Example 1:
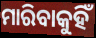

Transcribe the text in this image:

ମାରିବାକୁହିଁ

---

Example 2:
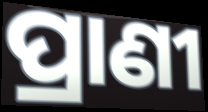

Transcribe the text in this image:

ପ୍ରାଣୀ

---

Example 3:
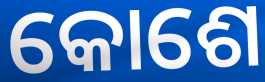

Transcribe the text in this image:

କୋଶେ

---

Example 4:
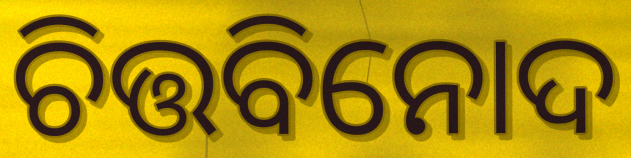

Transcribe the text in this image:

ଚିତ୍ତବିନୋଦ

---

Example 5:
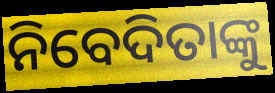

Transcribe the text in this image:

ନିବେଦିତାଙ୍କୁ